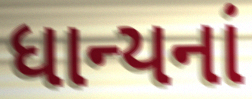
ધાન્યનાં